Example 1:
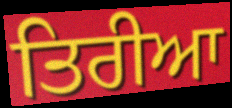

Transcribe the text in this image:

ਤਿਰੀਆ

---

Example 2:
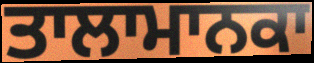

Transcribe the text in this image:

ਤਾਲਾਮਾਨਕਾ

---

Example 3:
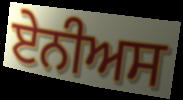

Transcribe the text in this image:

ਏਨੀਅਸ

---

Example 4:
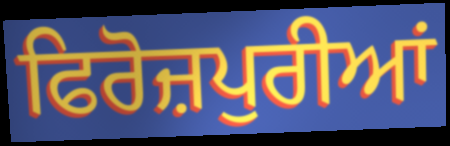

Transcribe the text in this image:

ਫਿਰੋਜ਼ਪੁਰੀਆਂ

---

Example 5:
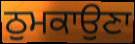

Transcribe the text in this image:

ਠੁਮਕਾਉਣਾ